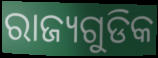
ରାଜ୍ୟଗୁଡିକ